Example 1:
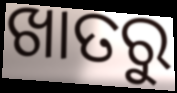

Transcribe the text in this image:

ଖାତରୁ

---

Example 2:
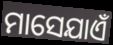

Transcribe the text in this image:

ମାସେଯାଏଁ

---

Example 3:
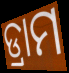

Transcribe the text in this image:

ଡ୍ରାମ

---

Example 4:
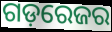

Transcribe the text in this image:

ଗଡ଼ରେଜର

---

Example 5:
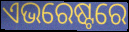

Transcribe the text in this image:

ଏଭରେଷ୍ଟରେ